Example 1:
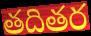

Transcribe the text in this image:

తదితర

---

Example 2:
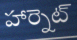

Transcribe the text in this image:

హార్నెట్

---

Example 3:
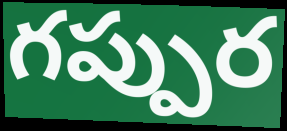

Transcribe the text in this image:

గప్పుర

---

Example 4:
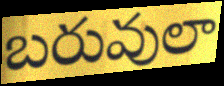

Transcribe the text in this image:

బరువులా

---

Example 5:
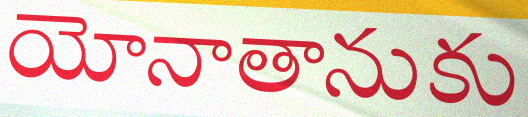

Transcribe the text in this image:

యోనాతానుకు